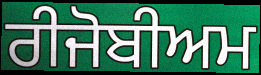
ਰੀਜੋਬੀਅਮ